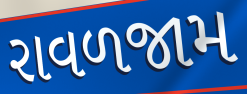
રાવળજામ